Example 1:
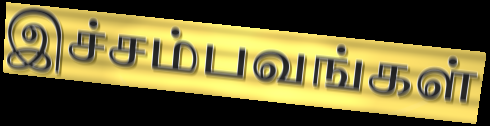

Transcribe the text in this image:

இச்சம்பவங்கள்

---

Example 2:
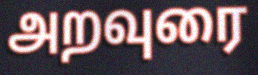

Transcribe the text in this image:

அறவுரை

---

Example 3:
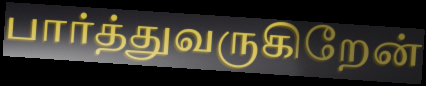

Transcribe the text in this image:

பார்த்துவருகிறேன்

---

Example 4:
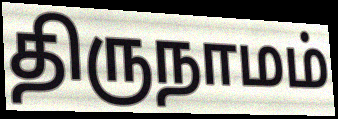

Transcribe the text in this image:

திருநாமம்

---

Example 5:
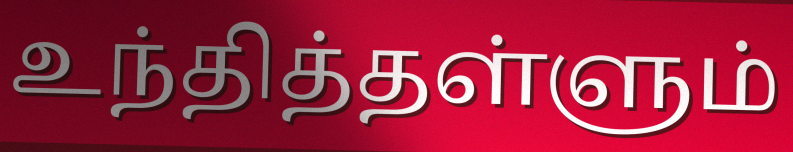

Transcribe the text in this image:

உந்தித்தள்ளும்